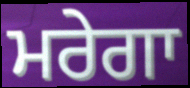
ਮਰੇਗਾ